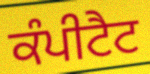
ਕੰਪੀਟੈਟ